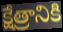
క్షేత్రానికి